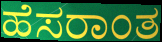
ಹೆಸರಾಂತ